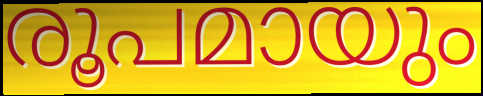
രൂപമായും